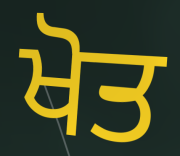
ਖੋਤ